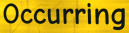
Occurring